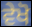
ਵੇਖੋ